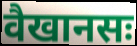
वैखानसः